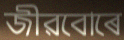
জীৱবোৰে